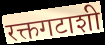
रक्तगटाशी